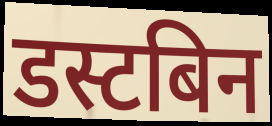
डस्टबिन